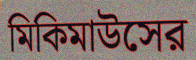
মিকিমাউসের